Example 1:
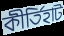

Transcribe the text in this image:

কীর্তিহাট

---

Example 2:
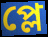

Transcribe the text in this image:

প্লে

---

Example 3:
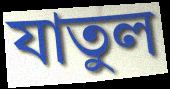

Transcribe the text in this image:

যাতুল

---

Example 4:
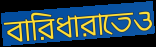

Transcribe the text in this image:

বারিধারাতেও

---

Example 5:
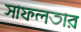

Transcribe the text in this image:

সাফলতার